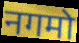
नगमो